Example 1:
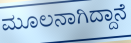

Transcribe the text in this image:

ಮೂಲನಾಗಿದ್ದಾನೆ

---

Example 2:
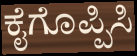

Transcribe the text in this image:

ಕೈಗೊಪ್ಪಿಸಿ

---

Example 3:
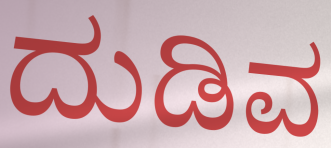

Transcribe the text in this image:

ದುಡಿವ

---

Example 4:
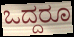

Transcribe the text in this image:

ಒದ್ದರೂ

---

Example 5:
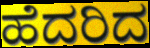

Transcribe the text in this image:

ಹೆದರಿದ